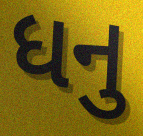
ધનુ